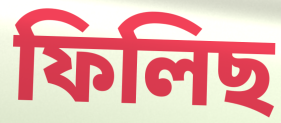
ফিলিছ